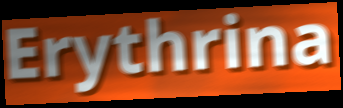
Erythrina